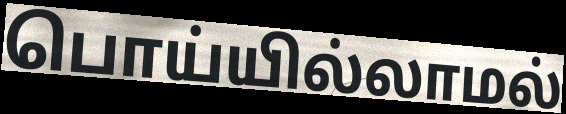
பொய்யில்லாமல்